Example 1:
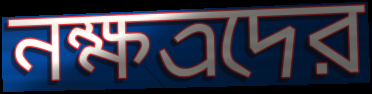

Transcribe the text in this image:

নক্ষত্রদের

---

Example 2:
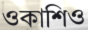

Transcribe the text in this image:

ওকাশিও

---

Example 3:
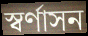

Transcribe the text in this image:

স্বর্ণাসন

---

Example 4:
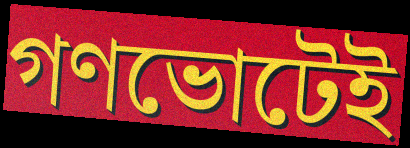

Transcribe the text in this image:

গণভোটেই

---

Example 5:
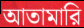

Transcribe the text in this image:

আতামারি